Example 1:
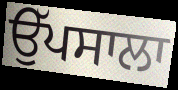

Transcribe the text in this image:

ਉੱਪਸਾਲਾ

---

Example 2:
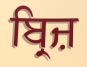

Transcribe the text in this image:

ਬ੍ਰਿਜ਼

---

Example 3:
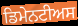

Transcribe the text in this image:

ਡਿਮੇਨਟੀਅਸ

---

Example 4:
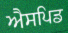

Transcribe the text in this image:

ਐਸਪਿਡ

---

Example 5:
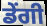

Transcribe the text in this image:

ਡੇਂਗੀ